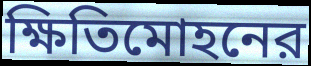
ক্ষিতিমোহনের